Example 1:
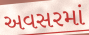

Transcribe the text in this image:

અવસરમાં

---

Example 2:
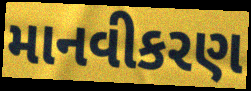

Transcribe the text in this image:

માનવીકરણ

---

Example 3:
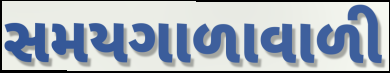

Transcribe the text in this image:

સમયગાળાવાળી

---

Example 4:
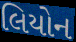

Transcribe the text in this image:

લિયોન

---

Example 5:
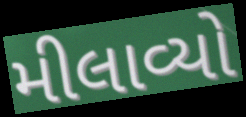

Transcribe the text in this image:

મીલાવ્યો